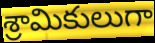
శ్రామికులుగా